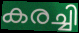
കരച്ചി